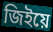
জিইয়ে